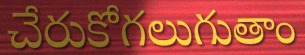
చేరుకోగలుగుతాం